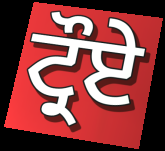
ਟ੍ਰੌਏ